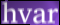
hvar